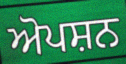
ਅੋਪਸ਼ਨ